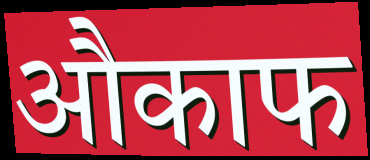
औकाफ